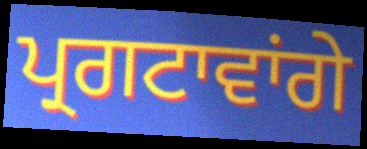
ਪ੍ਰਗਟਾਵਾਂਗੇ